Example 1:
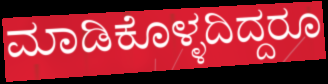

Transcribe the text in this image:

ಮಾಡಿಕೊಳ್ಳದಿದ್ದರೂ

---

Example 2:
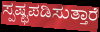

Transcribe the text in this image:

ಸ್ಪಷ್ಟಪಡಿಸುತ್ತಾರೆ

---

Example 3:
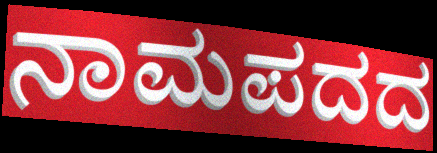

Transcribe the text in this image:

ನಾಮಪದದ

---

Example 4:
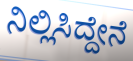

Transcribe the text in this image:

ನಿಲ್ಲಿಸಿದ್ದೇನೆ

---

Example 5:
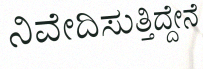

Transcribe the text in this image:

ನಿವೇದಿಸುತ್ತಿದ್ದೇನೆ